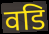
वडि